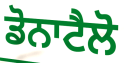
ਡੋਨਾਟੈਲੋ